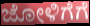
ಜೋಳಿಗೆಗೆ